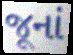
જૂનાં